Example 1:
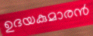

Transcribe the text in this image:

ഉദയകുമാരൻ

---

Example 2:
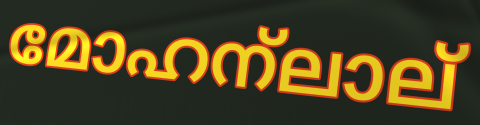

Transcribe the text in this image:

മോഹന്ലാല്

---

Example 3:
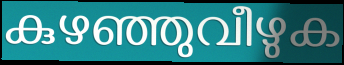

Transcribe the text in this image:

കുഴഞ്ഞുവീഴുക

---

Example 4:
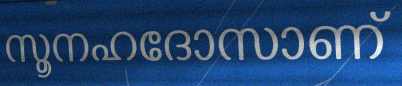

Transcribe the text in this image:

സൂനഹദോസാണ്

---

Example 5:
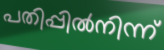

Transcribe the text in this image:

പതിപ്പിൽനിന്ന്